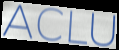
ACLU